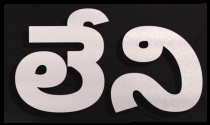
లేని